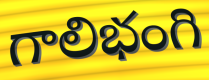
గాలిభంగి